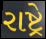
રાષ્ટ્રે